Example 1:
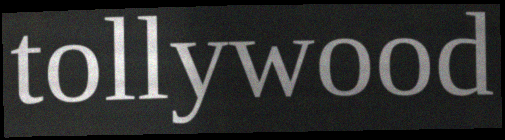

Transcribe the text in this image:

tollywood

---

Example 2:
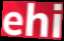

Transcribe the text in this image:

ehi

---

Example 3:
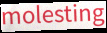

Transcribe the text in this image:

molesting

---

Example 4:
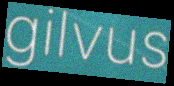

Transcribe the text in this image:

gilvus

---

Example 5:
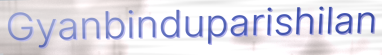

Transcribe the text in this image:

Gyanbinduparishilan